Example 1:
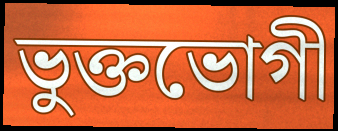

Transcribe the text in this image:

ভুক্তভোগী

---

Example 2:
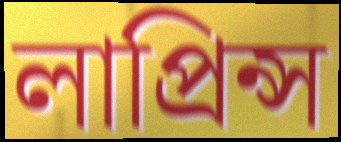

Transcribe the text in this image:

লাপ্রিন্স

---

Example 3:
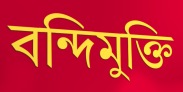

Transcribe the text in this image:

বন্দিমুক্তি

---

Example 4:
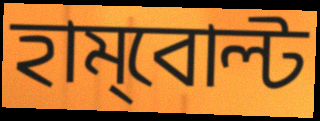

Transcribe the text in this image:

হাম্‌বোল্ট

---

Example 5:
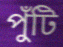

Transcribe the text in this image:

পুঁটি